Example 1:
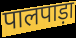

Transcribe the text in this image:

पालपाड़ा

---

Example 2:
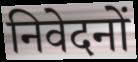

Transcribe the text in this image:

निवेदनों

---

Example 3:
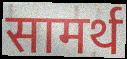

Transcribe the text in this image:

सामर्थ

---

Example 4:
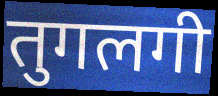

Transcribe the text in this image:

तुगलगी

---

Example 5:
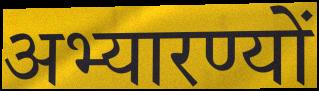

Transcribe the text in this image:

अभ्यारण्यों